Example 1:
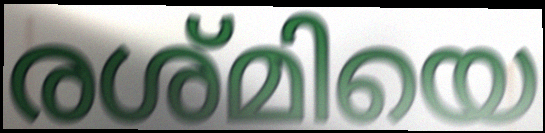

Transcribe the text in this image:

രശ്മിയെ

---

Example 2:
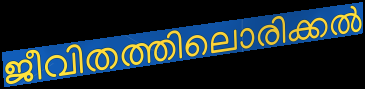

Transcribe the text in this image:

ജീവിതത്തിലൊരിക്കൽ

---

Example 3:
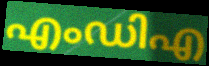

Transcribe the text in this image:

എംഡിഎ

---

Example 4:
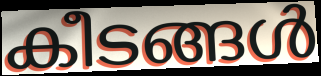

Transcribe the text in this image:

കീടങ്ങൾ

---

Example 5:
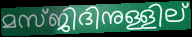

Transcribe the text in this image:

മസ്ജിദിനുള്ളില്